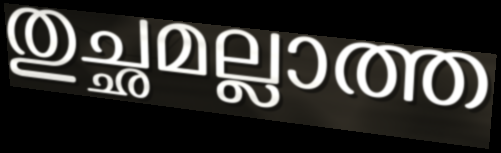
തുച്ഛമല്ലാത്ത